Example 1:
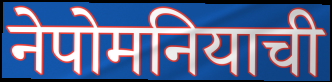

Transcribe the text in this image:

नेपोमनियाची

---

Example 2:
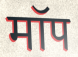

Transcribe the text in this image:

मॉप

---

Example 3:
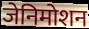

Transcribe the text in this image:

जेनिमोशन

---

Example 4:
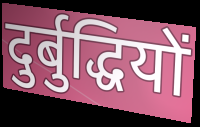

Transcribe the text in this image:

दुर्बुद्धियों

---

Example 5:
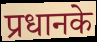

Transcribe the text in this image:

प्रधानके